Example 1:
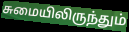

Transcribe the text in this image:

சுமையிலிருந்தும்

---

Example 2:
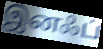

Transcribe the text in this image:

இனஃப்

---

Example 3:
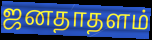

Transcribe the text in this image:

ஜனதாதளம்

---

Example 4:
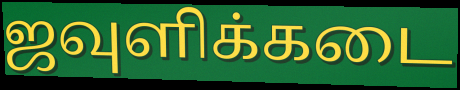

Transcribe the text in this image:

ஜவுளிக்கடை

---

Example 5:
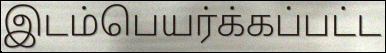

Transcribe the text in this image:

இடம்பெயர்க்கப்பட்ட